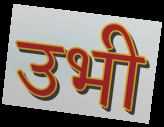
उभी